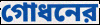
গোধনের